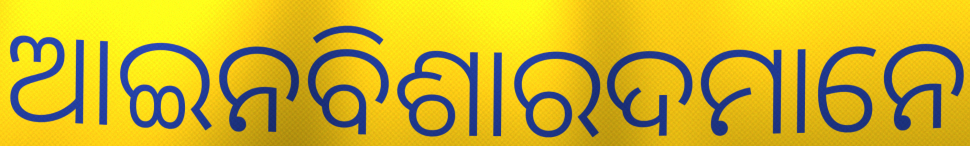
ଆଇନବିଶାରଦମାନେ